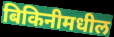
बिकिनीमधील